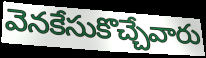
వెనకేసుకొచ్చేవారు